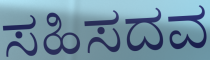
ಸಹಿಸದವ